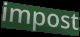
impost